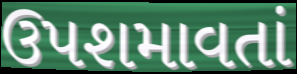
ઉપશમાવતાં